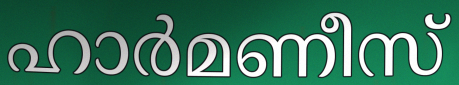
ഹാർമണീസ്